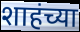
शाहंच्या